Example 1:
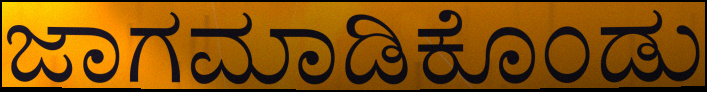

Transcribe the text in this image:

ಜಾಗಮಾಡಿಕೊಂಡು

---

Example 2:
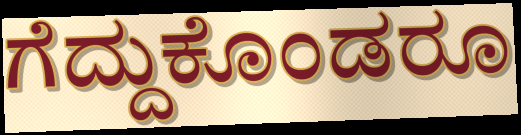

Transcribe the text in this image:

ಗೆದ್ದುಕೊಂಡರೂ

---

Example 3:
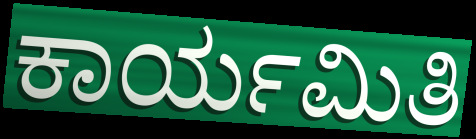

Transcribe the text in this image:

ಕಾರ್ಯಮಿತಿ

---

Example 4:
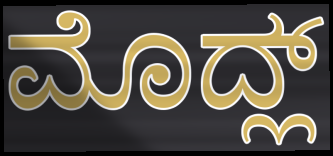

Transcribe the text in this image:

ಮೊದ್ಲ್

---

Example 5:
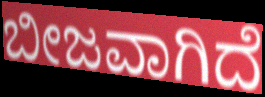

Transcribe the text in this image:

ಬೀಜವಾಗಿದೆ